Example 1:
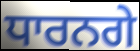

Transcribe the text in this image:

ਧਾਰਨਗੇ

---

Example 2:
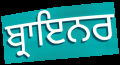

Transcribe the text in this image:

ਬ੍ਰਾਇਨਰ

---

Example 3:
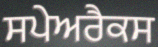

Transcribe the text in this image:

ਸਪੇਅਰੈਕਸ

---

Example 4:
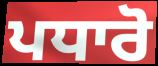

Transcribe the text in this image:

ਪਧਾਰੋ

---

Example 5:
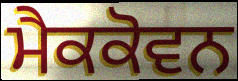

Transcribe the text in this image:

ਮੈਕਕੋਵਨ